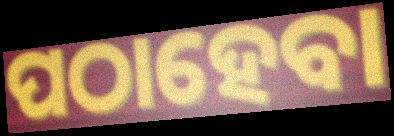
ପଠାହେବା